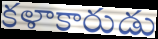
కళాకారుడు